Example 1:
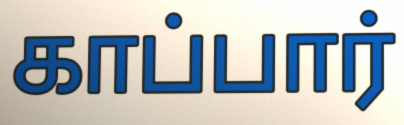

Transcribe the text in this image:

காப்பார்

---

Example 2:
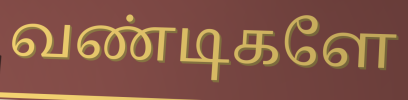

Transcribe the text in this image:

வண்டிகளே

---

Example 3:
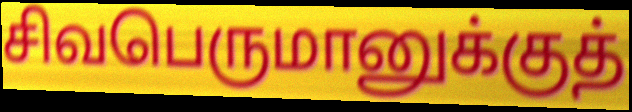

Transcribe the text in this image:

சிவபெருமானுக்குத்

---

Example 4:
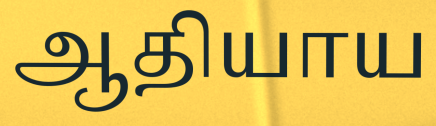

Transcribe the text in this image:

ஆதியாய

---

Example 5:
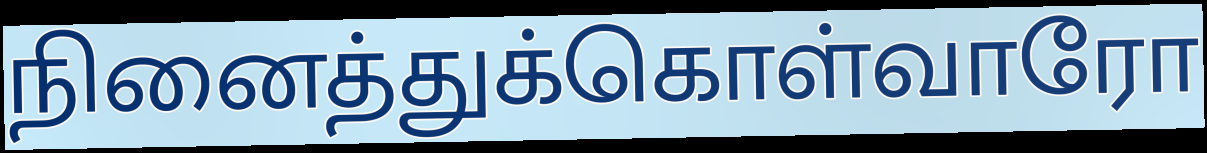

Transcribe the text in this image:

நினைத்துக்கொள்வாரோ